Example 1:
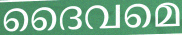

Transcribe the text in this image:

ദൈവമെ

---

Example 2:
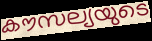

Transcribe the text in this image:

കൗസല്യയുടെ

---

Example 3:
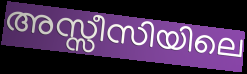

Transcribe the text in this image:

അസ്സീസിയിലെ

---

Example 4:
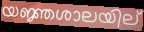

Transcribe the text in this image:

യജ്ഞശാലയില്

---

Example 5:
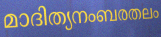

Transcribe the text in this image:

മാദിത്യനംബരതലം